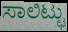
ಸಾಲಿಟ್ಟು